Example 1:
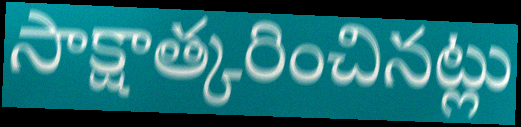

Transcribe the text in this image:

సాక్షాత్కరించినట్లు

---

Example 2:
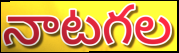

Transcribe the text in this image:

నాటగల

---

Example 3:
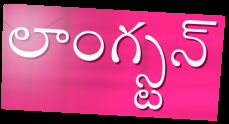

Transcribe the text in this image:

లాంగ్స్టన్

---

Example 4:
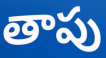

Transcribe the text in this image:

తాపు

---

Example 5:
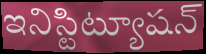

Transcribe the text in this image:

ఇనిస్టిట్యూషన్